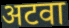
अटवा